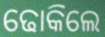
ଢୋକିଲେ